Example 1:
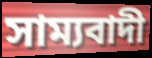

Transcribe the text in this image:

সাম্যবাদী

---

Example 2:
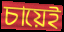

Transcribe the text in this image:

চায়েই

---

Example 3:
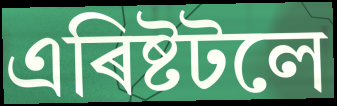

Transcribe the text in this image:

এৰিষ্টটলে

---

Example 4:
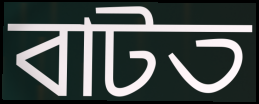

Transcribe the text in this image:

বাটত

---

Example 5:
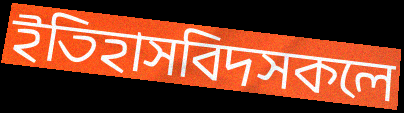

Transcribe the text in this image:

ইতিহাসবিদসকলে